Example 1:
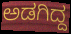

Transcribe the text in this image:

ಅಡಗಿದ್ದ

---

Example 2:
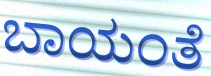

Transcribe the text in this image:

ಬಾಯಂತೆ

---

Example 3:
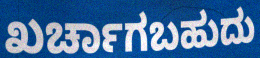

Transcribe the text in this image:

ಖರ್ಚಾಗಬಹುದು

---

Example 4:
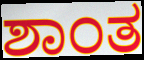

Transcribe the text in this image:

ಶಾಂತ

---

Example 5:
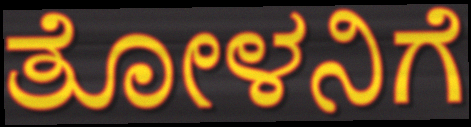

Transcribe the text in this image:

ತೋಳನಿಗೆ